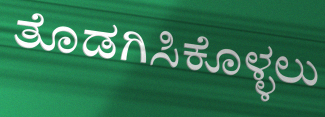
ತೊಡಗಿಸಿಕೊಳ್ಳಲು